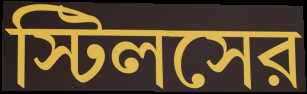
স্টিলসের